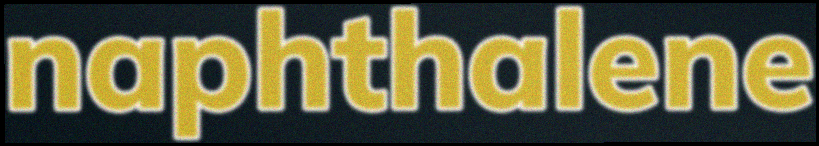
naphthalene